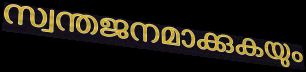
സ്വന്തജനമാക്കുകയും